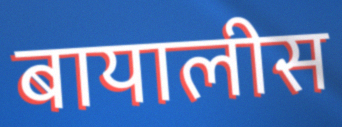
बायालीस